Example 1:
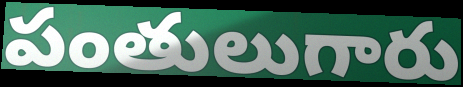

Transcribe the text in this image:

పంతులుగారు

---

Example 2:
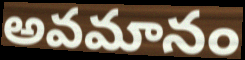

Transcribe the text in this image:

అవమానం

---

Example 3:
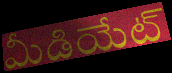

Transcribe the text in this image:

మీడియేట్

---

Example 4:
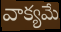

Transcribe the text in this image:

వాక్యమే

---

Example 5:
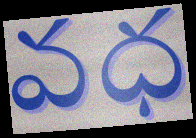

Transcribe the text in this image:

వధ